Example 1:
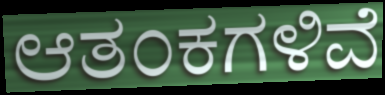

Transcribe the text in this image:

ಆತಂಕಗಳಿವೆ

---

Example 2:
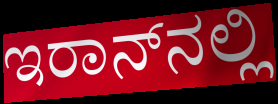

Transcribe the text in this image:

ಇರಾನ್‌ನಲ್ಲಿ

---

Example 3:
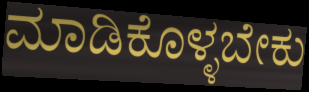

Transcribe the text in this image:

ಮಾಡಿಕೊಳ್ಳಬೇಕು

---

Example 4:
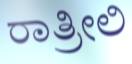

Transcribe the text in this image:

ರಾತ್ರೀಲಿ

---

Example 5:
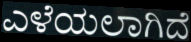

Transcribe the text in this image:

ಎಳೆಯಲಾಗಿದೆ